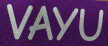
VAYU